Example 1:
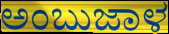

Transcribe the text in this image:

ಅಂಬುಜಾಳ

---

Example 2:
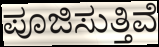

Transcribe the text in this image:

ಪೂಜಿಸುತ್ತಿವೆ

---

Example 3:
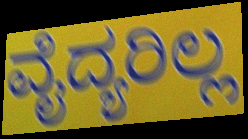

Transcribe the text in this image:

ವೈದ್ಯರಿಲ್ಲ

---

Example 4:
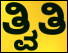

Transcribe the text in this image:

ತ್ವಿತಿ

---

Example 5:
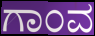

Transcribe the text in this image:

ಗಾಂವ